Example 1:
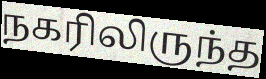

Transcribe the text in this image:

நகரிலிருந்த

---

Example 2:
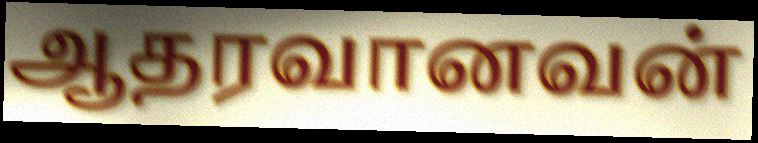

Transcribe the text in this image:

ஆதரவானவன்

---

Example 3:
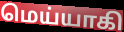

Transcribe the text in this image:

மெய்யாகி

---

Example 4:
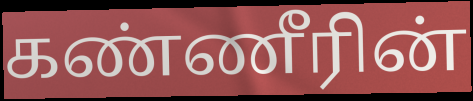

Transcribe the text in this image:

கண்ணீரின்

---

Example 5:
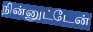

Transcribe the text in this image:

நின்னுட்டேன்